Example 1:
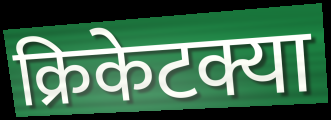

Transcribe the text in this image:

क्रिकेटक्या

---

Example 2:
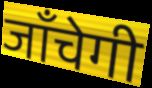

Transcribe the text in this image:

जाँचेगी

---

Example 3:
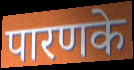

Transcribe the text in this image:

पारणके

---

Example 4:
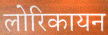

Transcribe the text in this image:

लोरिकायन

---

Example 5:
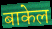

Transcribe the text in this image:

बाकेल